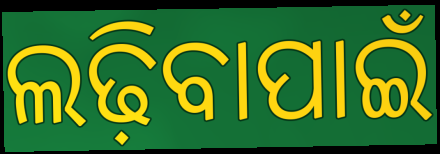
ଲଢ଼ିବାପାଇଁ